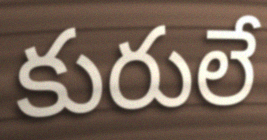
కురులే